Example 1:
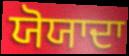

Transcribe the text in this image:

ਯੋਯਾਦਾ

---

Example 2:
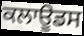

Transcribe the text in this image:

ਕਲਾਊਡਸ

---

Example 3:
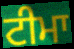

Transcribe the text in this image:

ਟੀਮਾ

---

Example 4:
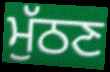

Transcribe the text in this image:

ਮੁੱਠਣ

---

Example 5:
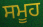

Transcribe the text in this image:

ਸਮੂਹ